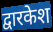
द्वारकेश